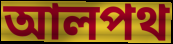
আলপথ